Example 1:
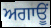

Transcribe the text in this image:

ਅਗਾਊਂ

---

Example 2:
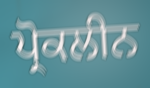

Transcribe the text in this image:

ਪ੍ਰੋਕਲੀਨ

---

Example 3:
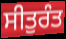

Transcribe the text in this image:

ਸੀਤੁਰੰਤ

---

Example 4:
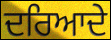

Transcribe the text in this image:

ਦਰਿਆਦੇ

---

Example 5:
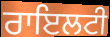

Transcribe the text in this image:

ਰਾਇਲਟੀ